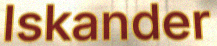
Iskander